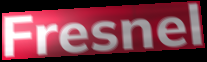
Fresnel